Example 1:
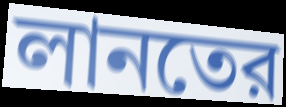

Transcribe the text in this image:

লানতের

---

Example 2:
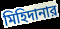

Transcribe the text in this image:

মিহিদানার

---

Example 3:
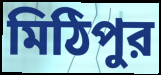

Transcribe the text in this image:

মিঠিপুর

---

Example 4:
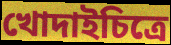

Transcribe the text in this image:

খোদাইচিত্রে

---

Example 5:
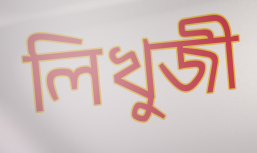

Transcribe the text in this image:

লিখুজী